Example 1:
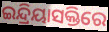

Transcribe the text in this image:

ଇନ୍ଦ୍ରିୟାସକ୍ତିରେ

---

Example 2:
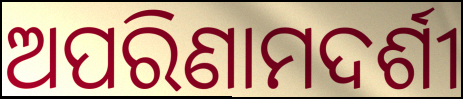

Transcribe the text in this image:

ଅପରିଣାମଦର୍ଶୀ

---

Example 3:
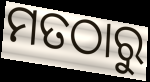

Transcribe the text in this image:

ମତଠାରୁ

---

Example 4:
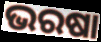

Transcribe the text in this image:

ଭରଷା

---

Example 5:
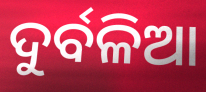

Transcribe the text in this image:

ଦୁର୍ବଳିଆ